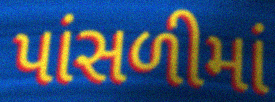
પાંસળીમાં